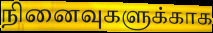
நினைவுகளுக்காக